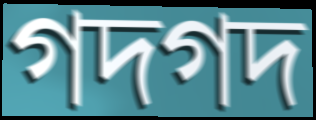
গদগদ